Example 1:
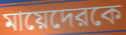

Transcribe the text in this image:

মায়েদেরকে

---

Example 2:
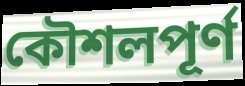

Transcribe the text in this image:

কৌশলপূর্ণ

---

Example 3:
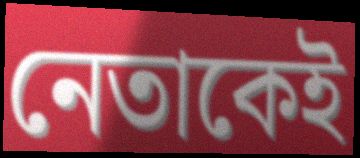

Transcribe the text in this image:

নেতাকেই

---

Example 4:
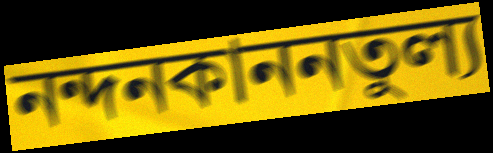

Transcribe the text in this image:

নন্দনকাননতুল্য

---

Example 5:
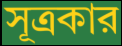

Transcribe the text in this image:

সূত্রকার